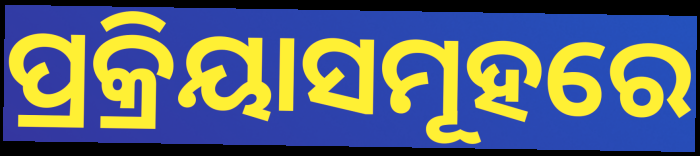
ପ୍ରକ୍ରିୟାସମୂହରେ